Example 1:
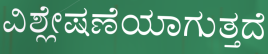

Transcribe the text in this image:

ವಿಶ್ಲೇಷಣೆಯಾಗುತ್ತದೆ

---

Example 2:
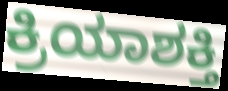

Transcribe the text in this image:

ಕ್ರಿಯಾಶಕ್ತಿ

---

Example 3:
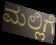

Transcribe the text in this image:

ಮಲ್ಲಿಗೆ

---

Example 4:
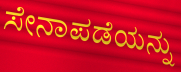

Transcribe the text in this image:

ಸೇನಾಪಡೆಯನ್ನು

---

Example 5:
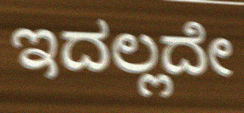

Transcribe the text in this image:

ಇದಲ್ಲದೇ